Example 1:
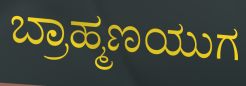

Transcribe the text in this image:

ಬ್ರಾಹ್ಮಣಯುಗ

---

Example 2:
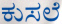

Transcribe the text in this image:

ಕುಸಲೆ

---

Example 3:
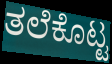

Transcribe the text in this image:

ತಲೆಕೊಟ್ಟ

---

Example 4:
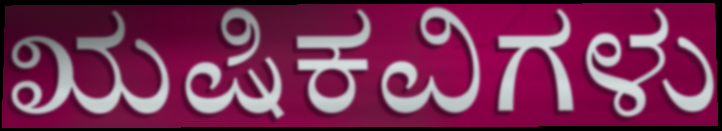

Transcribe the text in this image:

ಋಷಿಕವಿಗಳು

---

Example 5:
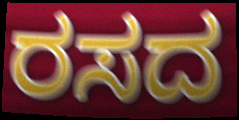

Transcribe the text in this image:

ರಸದ